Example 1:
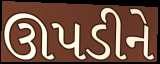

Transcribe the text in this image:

ઊપડીને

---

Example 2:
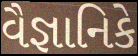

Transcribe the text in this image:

વૈજ્ઞાનિકે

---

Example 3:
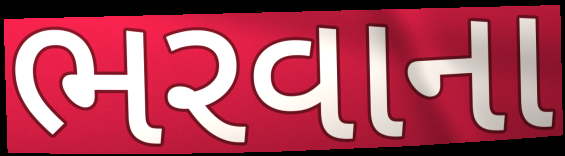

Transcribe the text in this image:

ભરવાના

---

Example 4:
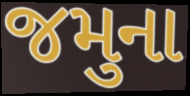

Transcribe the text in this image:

જમુના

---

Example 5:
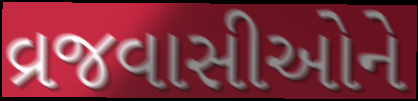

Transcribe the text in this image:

વ્રજવાસીઓને